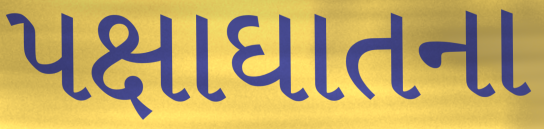
પક્ષાઘાતના